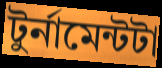
টুর্নামেন্টটা